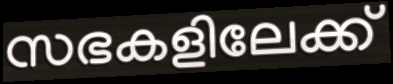
സഭകളിലേക്ക്